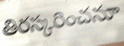
తిరస్కరించనూ